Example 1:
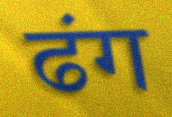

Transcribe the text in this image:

ढंग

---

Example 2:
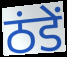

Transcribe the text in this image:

ठंडें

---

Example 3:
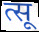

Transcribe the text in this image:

त्सू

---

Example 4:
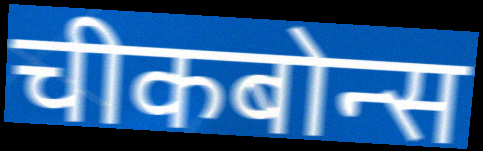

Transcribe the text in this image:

चीकबोन्स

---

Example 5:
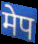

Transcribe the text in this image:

मेप